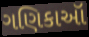
ગણિકાઑ